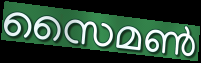
സൈമൺ